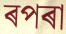
ৰপৰা